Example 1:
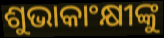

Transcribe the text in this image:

ଶୁଭାକାଂକ୍ଷୀଙ୍କୁ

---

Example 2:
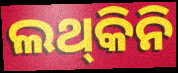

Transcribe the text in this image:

ଲଥ୍‍କିନି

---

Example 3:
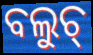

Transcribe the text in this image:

ବଲୁଚ୍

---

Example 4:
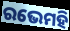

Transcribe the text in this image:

ରଭେମହି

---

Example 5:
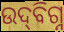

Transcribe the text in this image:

ଉଦ୍‌ବିଗ୍ନ